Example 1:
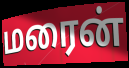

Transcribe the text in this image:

மரைன்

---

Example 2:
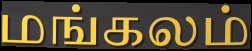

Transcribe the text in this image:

மங்கலம்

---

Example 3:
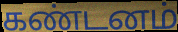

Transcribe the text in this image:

கண்டனம்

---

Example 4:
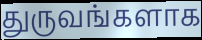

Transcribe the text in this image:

துருவங்களாக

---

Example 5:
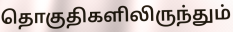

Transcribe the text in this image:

தொகுதிகளிலிருந்தும்